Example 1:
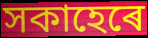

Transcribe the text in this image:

সকাহেৰে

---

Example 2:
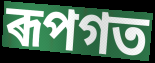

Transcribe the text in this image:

ৰূপগত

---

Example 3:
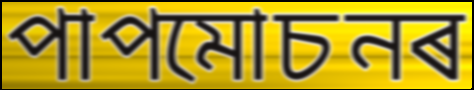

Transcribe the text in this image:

পাপমোচনৰ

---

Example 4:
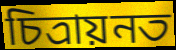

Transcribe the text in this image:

চিত্ৰায়নত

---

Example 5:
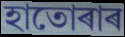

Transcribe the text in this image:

হাতোৰাৰ